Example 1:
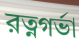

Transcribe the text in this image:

রত্নগর্ভা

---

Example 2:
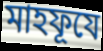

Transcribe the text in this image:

মাহফূযে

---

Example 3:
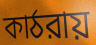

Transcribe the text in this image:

কাঠরায়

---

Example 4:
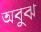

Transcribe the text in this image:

অবুঝ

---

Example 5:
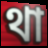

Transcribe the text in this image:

থা